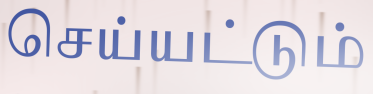
செய்யட்டும்